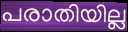
പരാതിയില്ല